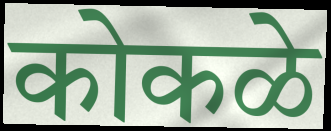
कोकळे